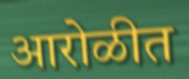
आरोळीत